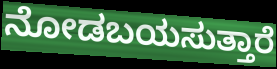
ನೋಡಬಯಸುತ್ತಾರೆ